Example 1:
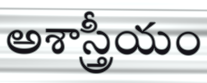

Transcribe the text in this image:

అశాస్త్రీయం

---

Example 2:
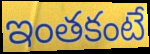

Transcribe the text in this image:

ఇంతకంటే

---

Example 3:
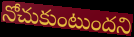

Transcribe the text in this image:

నోచుకుంటుందని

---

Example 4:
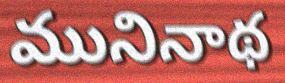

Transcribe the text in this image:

మునినాథ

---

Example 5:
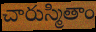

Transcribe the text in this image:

చారుస్మితాం